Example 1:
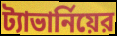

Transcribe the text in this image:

ট্যাভার্নিয়ের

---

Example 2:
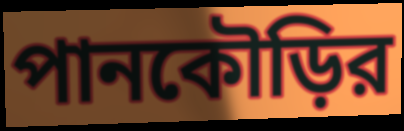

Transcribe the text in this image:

পানকৌড়ির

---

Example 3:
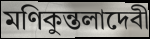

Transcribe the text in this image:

মণিকুন্তলাদেবী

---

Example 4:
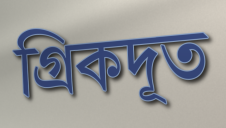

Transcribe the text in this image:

গ্রিকদূত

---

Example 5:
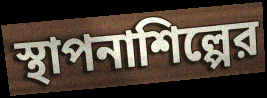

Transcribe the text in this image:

স্থাপনাশিল্পের